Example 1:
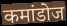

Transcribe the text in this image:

कमांडोज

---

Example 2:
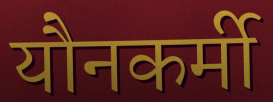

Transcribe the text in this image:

यौनकर्मी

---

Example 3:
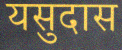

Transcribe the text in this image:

यसुदास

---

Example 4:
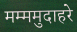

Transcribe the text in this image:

मम्ममुदाहरे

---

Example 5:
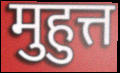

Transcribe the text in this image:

मुहुत्त